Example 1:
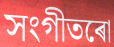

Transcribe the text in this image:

সংগীতৰো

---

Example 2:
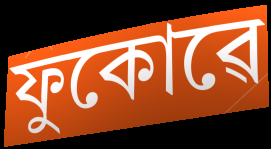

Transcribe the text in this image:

ফুকোৱে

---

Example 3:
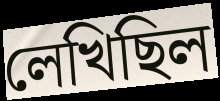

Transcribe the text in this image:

লেখিছিল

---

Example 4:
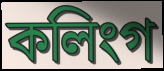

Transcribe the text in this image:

কলিংগ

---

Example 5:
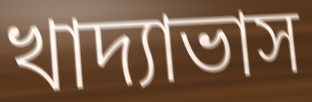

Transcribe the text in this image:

খাদ্যাভাস